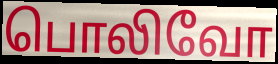
பொலிவோ